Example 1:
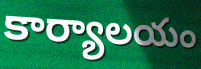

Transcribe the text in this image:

కార్యాలయం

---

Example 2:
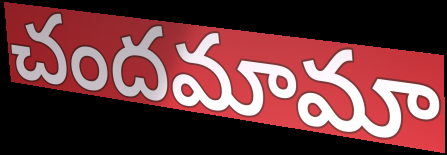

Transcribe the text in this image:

చందమామా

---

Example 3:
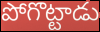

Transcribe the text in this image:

పోగొట్టాడు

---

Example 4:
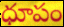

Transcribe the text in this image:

ధూపం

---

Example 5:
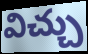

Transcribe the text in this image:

విచ్చు